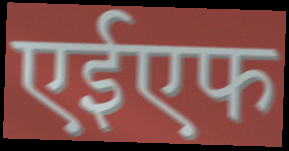
एईएफ